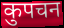
कुपचन